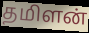
தமிளன்